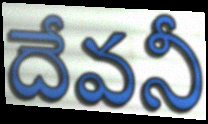
దేవనీ